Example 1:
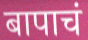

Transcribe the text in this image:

बापाचं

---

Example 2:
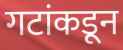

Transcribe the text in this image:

गटांकडून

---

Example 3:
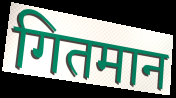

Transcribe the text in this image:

गितमान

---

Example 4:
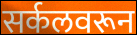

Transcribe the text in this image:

सर्कलवरून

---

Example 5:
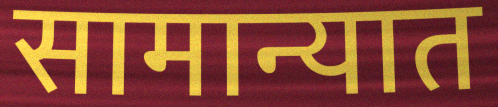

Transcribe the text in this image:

सामान्यात